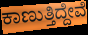
ಕಾಣುತ್ತಿದ್ದೇವೆ